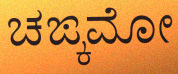
ಚಙ್ಕಮೋ